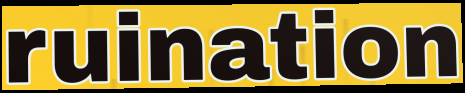
ruination